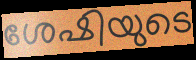
ശേഷിയുടെ